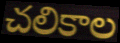
చలికాల